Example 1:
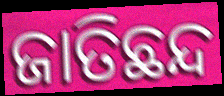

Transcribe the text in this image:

ଜାତିଛନ୍ଦ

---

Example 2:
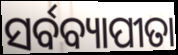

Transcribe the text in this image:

ସର୍ବବ୍ୟାପୀତା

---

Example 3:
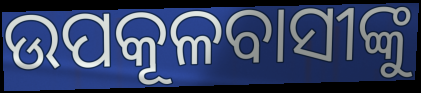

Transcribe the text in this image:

ଉପକୂଳବାସୀଙ୍କୁ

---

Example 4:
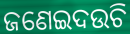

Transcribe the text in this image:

ଜଣେଇଦଉଚି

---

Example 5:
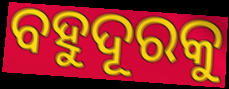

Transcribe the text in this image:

ବହୁଦୂରକୁ